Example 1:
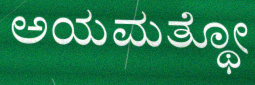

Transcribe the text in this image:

ಅಯಮತ್ಥೋ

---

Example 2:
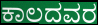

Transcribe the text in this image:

ಕಾಲದವರ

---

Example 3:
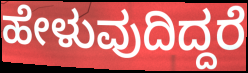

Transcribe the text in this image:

ಹೇಳುವುದಿದ್ದರೆ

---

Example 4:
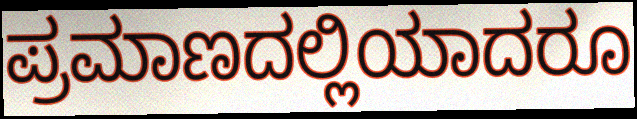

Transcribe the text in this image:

ಪ್ರಮಾಣದಲ್ಲಿಯಾದರೂ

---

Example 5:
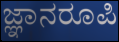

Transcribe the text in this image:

ಜ್ಞಾನರೂಪಿ